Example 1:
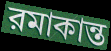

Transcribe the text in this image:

রমাকান্ত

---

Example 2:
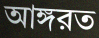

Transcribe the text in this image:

আঙ্গরত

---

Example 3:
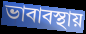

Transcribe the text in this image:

ভাবাবস্থায়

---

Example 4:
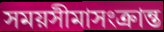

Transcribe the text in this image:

সময়সীমাসংক্রান্ত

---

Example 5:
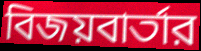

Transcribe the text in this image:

বিজয়বার্তার